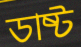
ডাষ্ট